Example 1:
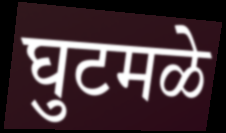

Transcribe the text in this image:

घुटमळे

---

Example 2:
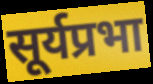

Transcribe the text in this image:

सूर्यप्रभा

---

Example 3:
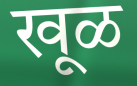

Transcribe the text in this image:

खूळ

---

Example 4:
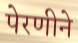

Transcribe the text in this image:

पेरणीने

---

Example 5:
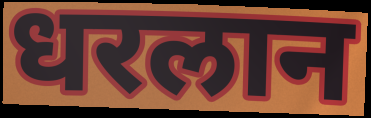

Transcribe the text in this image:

धरलान